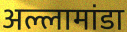
अल्लामांडा